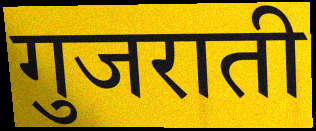
गुजराती